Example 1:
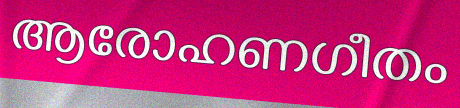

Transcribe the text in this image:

ആരോഹണഗീതം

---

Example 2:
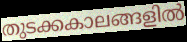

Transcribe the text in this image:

തുടക്കകാലങ്ങളിൽ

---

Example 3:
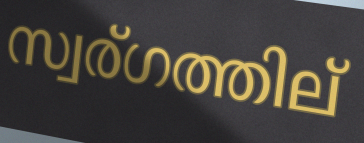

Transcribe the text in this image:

സ്വര്ഗത്തില്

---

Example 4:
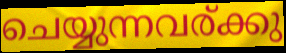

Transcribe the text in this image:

ചെയ്യുന്നവര്ക്കു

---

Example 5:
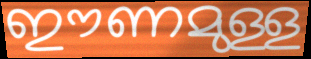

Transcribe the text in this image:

ഈണമുള്ള